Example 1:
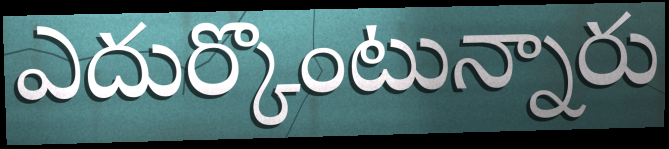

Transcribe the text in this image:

ఎదుర్కొంటున్నారు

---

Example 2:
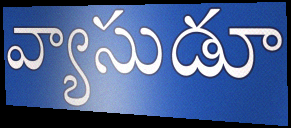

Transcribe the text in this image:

వ్యాసుడూ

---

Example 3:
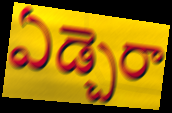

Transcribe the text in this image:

ఏడ్చెరా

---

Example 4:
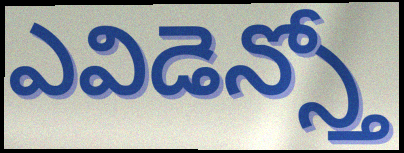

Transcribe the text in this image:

ఎవిడెన్స్తో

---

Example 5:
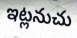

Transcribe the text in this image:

ఇట్లనుచు